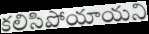
కలిసిపోయాయని